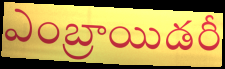
ఎంబ్రాయిడరీ